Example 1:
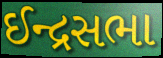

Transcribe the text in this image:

ઈન્દ્રસભા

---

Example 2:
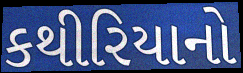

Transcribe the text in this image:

કથીરિયાનો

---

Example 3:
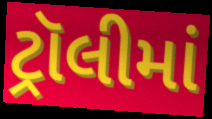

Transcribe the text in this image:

ટ્રૉલીમાં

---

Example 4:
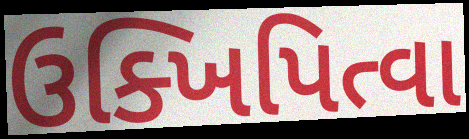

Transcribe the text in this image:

ઉક્ખિપિત્વા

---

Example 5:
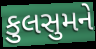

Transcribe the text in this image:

કુલસુમને